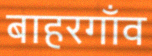
बाहरगाँव